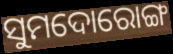
ସୁମଦୋରୋଙ୍ଗ